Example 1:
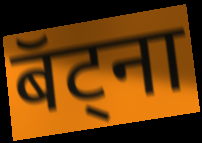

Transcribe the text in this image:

बॅट्ना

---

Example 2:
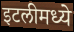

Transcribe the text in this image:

इटलीमध्ये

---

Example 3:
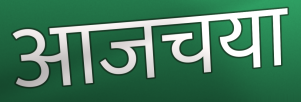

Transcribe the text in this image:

आजचया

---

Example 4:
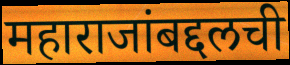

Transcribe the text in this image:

महाराजांबद्दलची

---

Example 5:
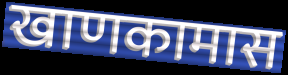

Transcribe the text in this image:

खाणकामास